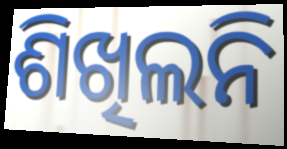
ଶିଖିଲନି